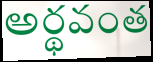
అర్థవంత